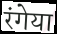
रंगेया